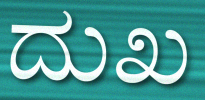
ದುಖ